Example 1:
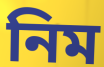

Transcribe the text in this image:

নিম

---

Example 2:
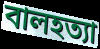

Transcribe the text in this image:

বালহত্যা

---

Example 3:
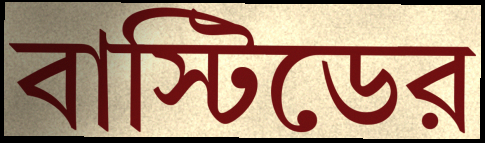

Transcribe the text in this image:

বাস্টিডের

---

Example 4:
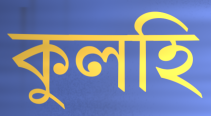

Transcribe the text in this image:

কুলহি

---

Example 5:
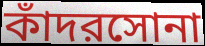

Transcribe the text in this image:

কাঁদরসোনা